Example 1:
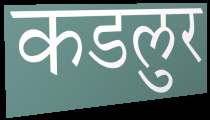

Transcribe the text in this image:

कडलुर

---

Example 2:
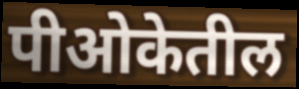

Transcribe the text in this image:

पीओकेतील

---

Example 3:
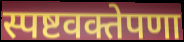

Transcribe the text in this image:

स्पष्टवक्तेपणा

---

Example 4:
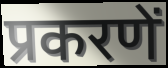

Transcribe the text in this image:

प्रकरणें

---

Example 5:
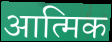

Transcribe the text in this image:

आत्मिक